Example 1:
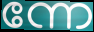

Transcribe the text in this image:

ന്നേ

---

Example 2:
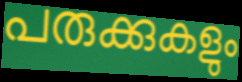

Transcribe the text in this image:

പരുക്കുകളും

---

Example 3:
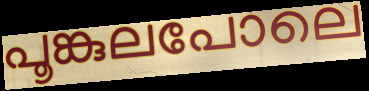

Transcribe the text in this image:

പൂങ്കുലപോലെ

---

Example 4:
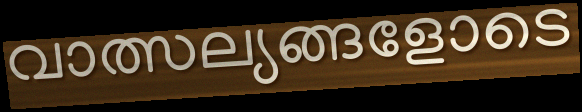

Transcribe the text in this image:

വാത്സല്യങ്ങളോടെ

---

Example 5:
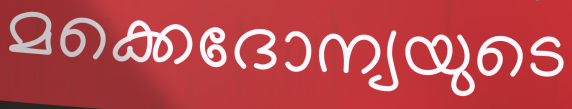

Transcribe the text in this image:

മക്കെദോന്യയുടെ